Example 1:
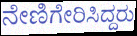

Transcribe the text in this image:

ನೇಣಿಗೇರಿಸಿದ್ದರು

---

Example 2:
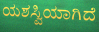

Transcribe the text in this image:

ಯಶಸ್ವಿಯಾಗಿದೆ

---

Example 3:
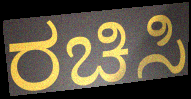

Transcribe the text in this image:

ರಚಿಸಿ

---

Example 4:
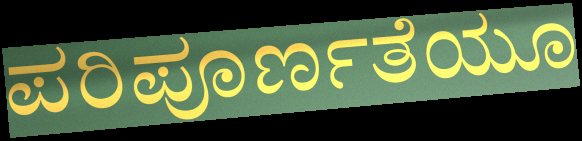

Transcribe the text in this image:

ಪರಿಪೂರ್ಣತೆಯೂ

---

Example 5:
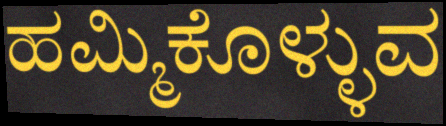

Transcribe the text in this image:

ಹಮ್ಮಿಕೊಳ್ಳುವ